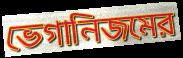
ভেগানিজমের